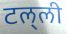
टल्ली